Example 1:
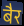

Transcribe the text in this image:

बैर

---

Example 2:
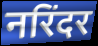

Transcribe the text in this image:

नरिंदर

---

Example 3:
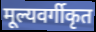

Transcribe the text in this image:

मूल्यवर्गीकृत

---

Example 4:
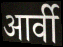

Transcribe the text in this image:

आर्वी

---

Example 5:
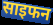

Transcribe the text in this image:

साइफन